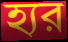
হ্যর